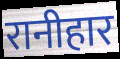
रानीहार